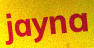
jayna